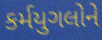
કર્મયુગલોને